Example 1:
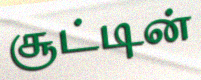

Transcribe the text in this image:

சூட்டின்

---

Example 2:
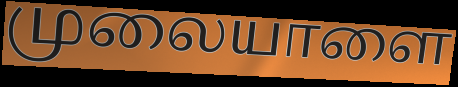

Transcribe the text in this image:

முலையாளை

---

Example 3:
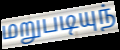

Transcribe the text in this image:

மறுபடியுந்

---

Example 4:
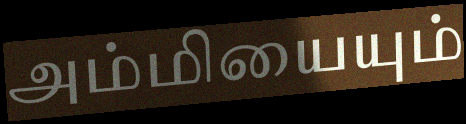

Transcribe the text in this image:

அம்மியையும்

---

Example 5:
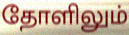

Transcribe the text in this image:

தோளிலும்